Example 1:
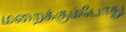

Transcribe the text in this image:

மறைக்கும்போது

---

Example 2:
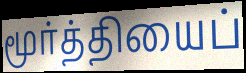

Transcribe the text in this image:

மூர்த்தியைப்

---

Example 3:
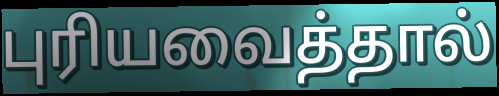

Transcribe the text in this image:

புரியவைத்தால்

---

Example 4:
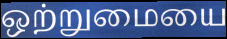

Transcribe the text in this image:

ஒற்றுமையை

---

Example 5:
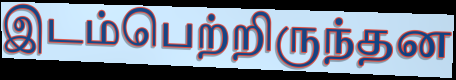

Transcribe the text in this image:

இடம்பெற்றிருந்தன